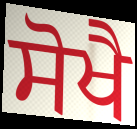
ਸੋਖੈ